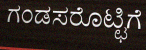
ಗಂಡಸರೊಟ್ಟಿಗೆ